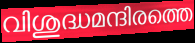
വിശുദ്ധമന്ദിരത്തെ